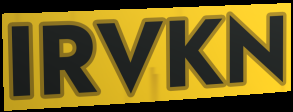
IRVKN